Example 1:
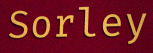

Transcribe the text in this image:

Sorley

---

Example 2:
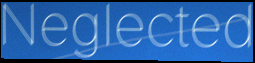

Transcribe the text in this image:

Neglected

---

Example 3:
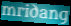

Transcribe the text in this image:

mridang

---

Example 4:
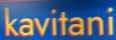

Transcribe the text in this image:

kavitani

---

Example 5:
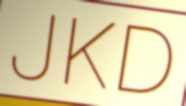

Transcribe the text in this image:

JKD